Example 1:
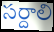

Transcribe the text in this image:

సర్దాలి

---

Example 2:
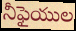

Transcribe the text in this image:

నీఫైయుల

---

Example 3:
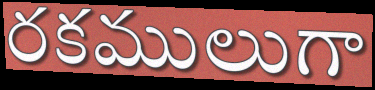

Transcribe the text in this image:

రకములుగా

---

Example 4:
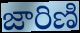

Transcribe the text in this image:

జారిణి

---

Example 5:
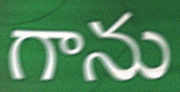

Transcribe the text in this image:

గాను